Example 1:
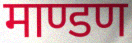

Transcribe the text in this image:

माण्डण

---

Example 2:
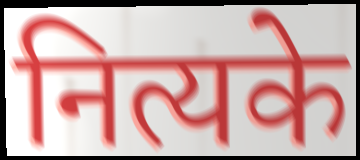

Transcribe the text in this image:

नित्यके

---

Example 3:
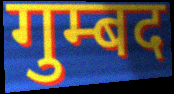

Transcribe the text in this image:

गुम्बद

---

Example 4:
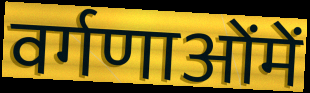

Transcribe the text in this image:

वर्गणाओंमें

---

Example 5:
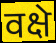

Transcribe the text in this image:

वक्षे